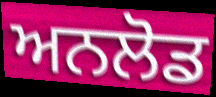
ਅਨਲੋਡ